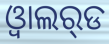
ଓ୍ବାଲର୍‌ଡ